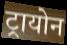
ट्रायोन